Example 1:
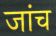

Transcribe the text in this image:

जांच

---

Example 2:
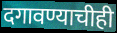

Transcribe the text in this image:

दगावण्याचीही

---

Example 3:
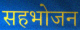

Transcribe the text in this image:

सहभोजन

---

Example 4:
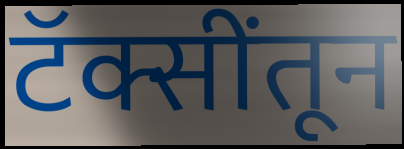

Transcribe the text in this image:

टॅक्सींतून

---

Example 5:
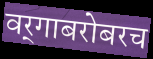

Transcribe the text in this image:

वर्गाबरोबरच